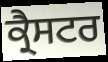
ਕ੍ਰੈਸਟਰ